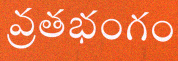
వ్రతభంగం